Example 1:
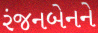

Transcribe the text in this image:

રંજનબેનને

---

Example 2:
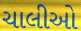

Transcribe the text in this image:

ચાલીઓ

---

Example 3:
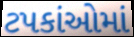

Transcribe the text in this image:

ટપકાંઓમાં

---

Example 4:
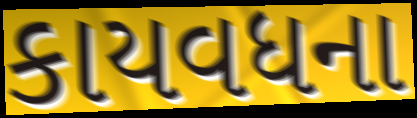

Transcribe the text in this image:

કાયવધના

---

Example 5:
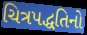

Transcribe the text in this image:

ચિત્રપદ્ધતિનો